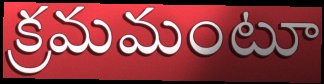
క్రమమంటూ